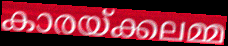
കാരയ്ക്കലമ്മ